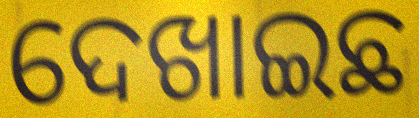
ଦେଖାଇଛ